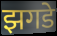
झगडे